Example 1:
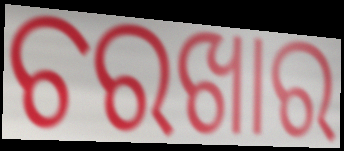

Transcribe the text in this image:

ଚରଖାର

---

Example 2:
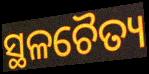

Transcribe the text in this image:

ସ୍ଥଳଚୈତ୍ୟ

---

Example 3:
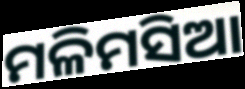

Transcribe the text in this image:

ମଳିମସିଆ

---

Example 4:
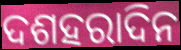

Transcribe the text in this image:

ଦଶହରାଦିନ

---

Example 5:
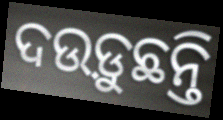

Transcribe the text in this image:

ଦଉଡ଼ୁଛନ୍ତି